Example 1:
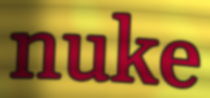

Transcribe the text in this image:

nuke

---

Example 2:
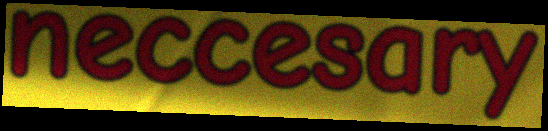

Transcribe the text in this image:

neccesary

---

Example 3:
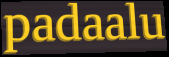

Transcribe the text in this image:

padaalu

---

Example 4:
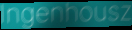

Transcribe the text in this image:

Ingenhousz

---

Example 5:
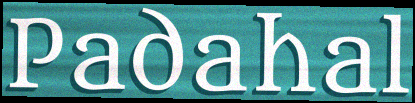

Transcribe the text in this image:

Padahal